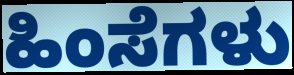
ಹಿಂಸೆಗಳು